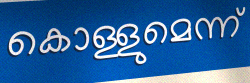
കൊള്ളുമെന്ന്